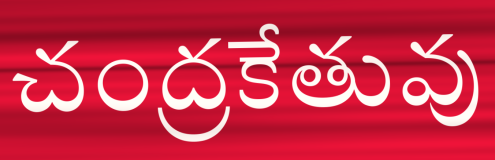
చంద్రకేతువు